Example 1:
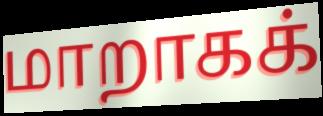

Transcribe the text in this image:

மாறாகக்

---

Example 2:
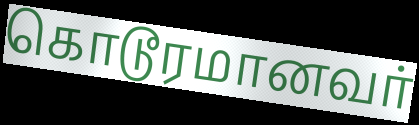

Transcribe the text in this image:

கொடூரமானவர்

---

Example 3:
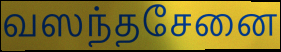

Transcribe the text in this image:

வஸந்தசேனை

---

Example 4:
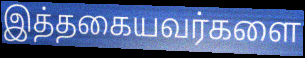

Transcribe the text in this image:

இத்தகையவர்களை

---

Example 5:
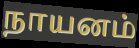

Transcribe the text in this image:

நாயனம்